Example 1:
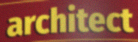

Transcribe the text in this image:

architect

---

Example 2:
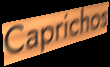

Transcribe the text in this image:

Caprichos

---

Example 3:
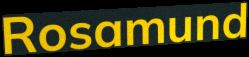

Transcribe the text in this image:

Rosamund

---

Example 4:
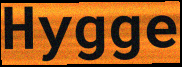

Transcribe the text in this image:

Hygge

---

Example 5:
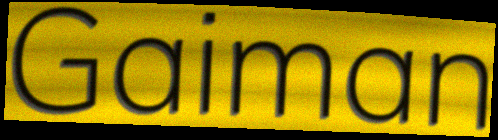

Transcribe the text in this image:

Gaiman